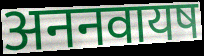
अननवायष